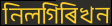
নিলগিৰিখন